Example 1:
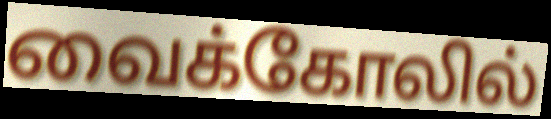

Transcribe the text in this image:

வைக்கோலில்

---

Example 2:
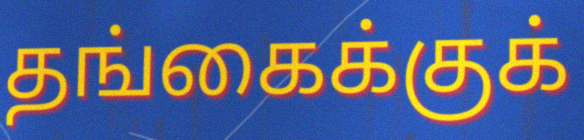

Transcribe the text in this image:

தங்கைக்குக்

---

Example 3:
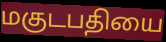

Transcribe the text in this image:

மகுடபதியை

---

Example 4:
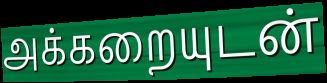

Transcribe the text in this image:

அக்கறையுடன்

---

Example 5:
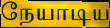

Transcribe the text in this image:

நேயாடிய